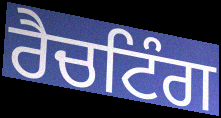
ਰੈਚਟਿੰਗ